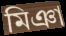
মিঞা